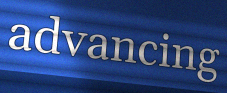
advancing